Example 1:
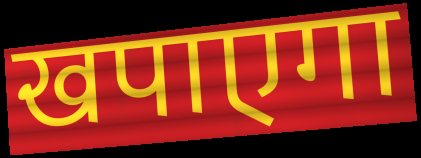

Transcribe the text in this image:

खपाएगा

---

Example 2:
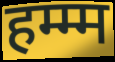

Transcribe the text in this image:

हम्म्म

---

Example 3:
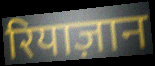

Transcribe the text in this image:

रियाज़ान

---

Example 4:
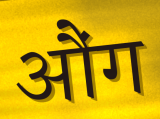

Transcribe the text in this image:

औंग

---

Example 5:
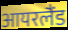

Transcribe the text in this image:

आयरलैंड